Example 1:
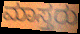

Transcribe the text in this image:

ಮಾಸ್ತರು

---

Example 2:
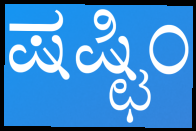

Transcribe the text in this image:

ಷಷ್ಟಿಂ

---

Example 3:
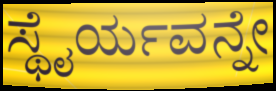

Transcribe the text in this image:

ಸ್ಥೈರ್ಯವನ್ನೇ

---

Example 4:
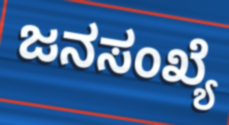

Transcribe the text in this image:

ಜನಸಂಖ್ಯೆ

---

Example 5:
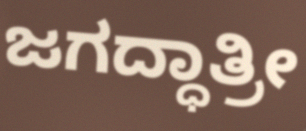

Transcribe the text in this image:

ಜಗದ್ಧಾತ್ರೀ